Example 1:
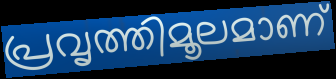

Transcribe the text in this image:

പ്രവൃത്തിമൂലമാണ്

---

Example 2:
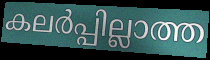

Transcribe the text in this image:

കലർപ്പില്ലാത്ത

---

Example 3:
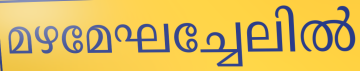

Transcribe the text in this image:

മഴമേഘച്ചേലിൽ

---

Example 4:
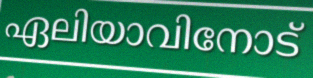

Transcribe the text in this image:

ഏലിയാവിനോട്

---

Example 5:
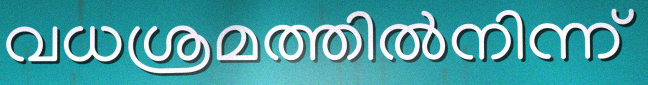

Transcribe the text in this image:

വധശ്രമത്തിൽനിന്ന്